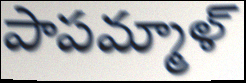
పాపమ్మాళ్